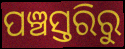
ପଞ୍ଚସ୍ତରିରୁ